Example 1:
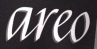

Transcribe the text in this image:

areo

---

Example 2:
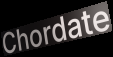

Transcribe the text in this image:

Chordate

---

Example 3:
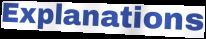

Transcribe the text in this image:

Explanations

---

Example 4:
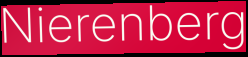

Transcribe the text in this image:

Nierenberg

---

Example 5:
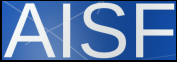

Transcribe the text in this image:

AISF